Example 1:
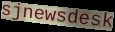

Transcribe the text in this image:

sjnewsdesk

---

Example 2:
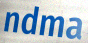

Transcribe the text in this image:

ndma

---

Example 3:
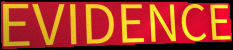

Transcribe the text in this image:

EVIDENCE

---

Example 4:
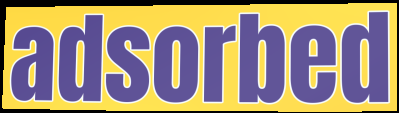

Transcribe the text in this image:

adsorbed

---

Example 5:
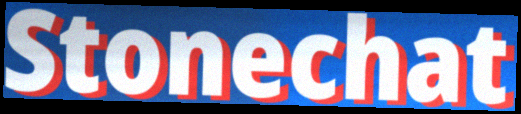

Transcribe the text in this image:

Stonechat